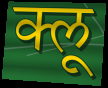
क्लू